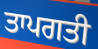
ਤਾਪਗਤੀ